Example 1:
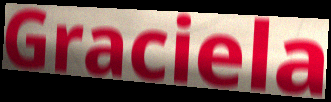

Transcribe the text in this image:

Graciela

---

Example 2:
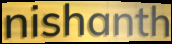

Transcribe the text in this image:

nishanth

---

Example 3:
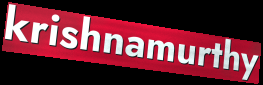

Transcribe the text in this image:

krishnamurthy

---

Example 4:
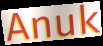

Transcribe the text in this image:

Anuk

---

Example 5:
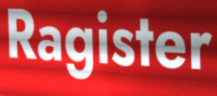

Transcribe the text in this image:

Ragister